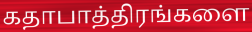
கதாபாத்திரங்களை